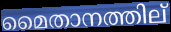
മൈതാനത്തില്